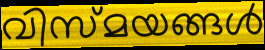
വിസ്മയങ്ങൾ